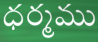
ధర్మము